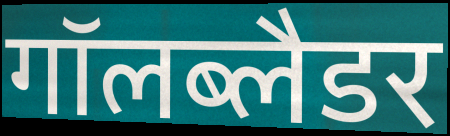
गॉलब्लैडर